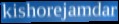
kishorejamdar